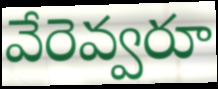
వేరెవ్వరూ